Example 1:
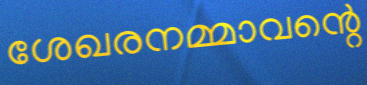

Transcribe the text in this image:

ശേഖരനമ്മാവന്റെ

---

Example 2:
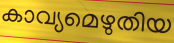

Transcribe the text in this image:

കാവ്യമെഴുതിയ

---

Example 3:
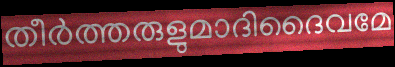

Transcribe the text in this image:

തീർത്തരുളുമാദിദൈവമേ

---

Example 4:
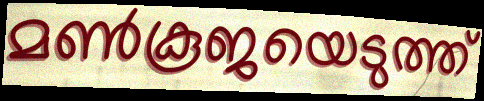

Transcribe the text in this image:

മൺകൂജയെടുത്ത്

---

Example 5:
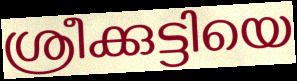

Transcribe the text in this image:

ശ്രീക്കുട്ടിയെ